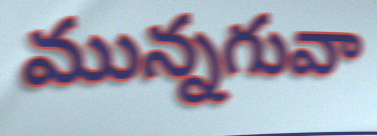
మున్నగువా